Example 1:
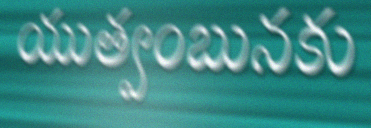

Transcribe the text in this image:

యుత్వంబునకు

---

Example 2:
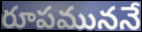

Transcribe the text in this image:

రూపముననే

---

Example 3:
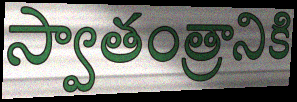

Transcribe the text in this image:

స్వాతంత్రానికి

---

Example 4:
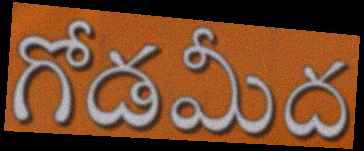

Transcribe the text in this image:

గోడమీద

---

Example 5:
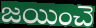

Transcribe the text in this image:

జయించె